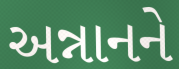
અન્નાનને